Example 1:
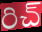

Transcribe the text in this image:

రిచ్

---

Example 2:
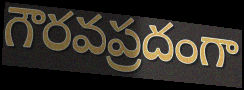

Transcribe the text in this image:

గౌరవప్రదంగా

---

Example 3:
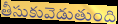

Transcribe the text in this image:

తీసుకువెడుతుంది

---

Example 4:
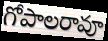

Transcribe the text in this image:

గోపాలరావూ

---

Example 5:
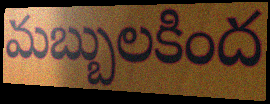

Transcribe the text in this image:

మబ్బులకింద